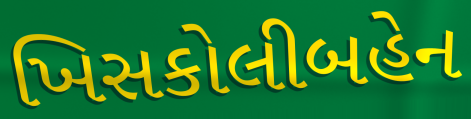
ખિસકોલીબહેન